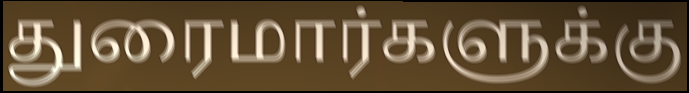
துரைமார்களுக்கு